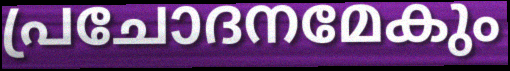
പ്രചോദനമേകും